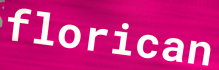
florican